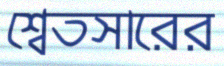
শ্বেতসারের